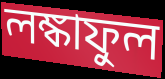
লঙ্কাফুল